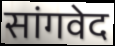
सांगवेद